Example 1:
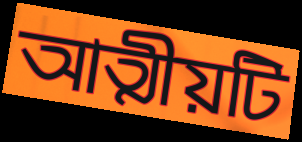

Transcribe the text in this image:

আত্মীয়টি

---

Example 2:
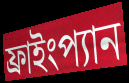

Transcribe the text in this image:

ফ্রাইংপ্যান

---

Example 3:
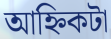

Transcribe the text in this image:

আহ্নিকটা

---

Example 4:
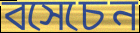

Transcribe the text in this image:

বসেচেন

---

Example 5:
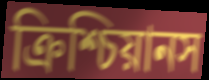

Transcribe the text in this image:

ক্রিশ্চিয়ানস